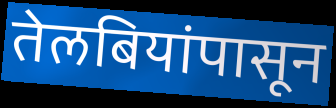
तेलबियांपासून